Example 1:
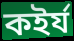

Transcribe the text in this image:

কইর্য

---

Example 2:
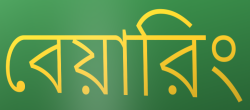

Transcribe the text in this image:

বেয়ারিং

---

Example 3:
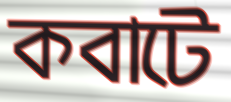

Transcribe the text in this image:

কবাটে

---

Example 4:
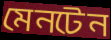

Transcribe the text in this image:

মেনটেন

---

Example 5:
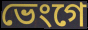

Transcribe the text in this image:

ভেংগে